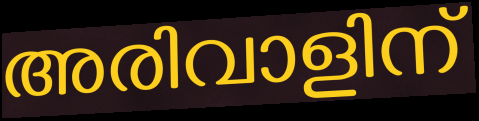
അരിവാളിന്